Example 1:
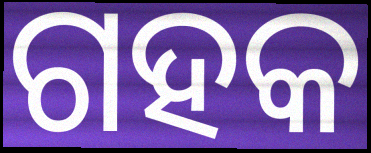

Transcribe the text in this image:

ଗହକ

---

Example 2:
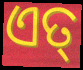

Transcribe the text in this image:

ଏତ୍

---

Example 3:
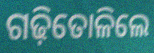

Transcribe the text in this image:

ଗଢ଼ିତୋଳିଲେ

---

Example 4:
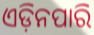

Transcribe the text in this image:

ଏଡ଼ିନପାରି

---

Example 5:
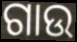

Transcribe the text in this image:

ଗାଉ